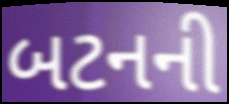
બટનની